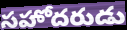
సహోదరుడు